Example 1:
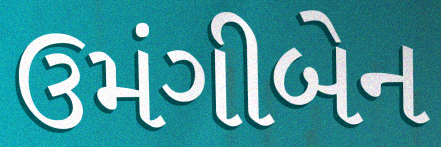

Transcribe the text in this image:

ઉમંગીબેન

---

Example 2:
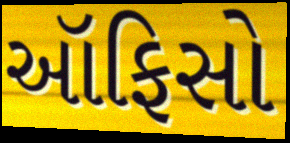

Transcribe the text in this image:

ઑફિસો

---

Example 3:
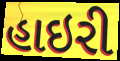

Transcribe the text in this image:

હાઇરી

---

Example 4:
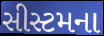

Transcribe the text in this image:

સીસ્ટમના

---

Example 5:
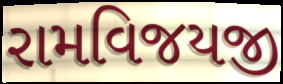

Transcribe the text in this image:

રામવિજયજી